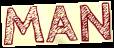
MAN